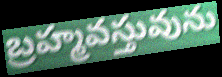
బ్రహ్మవస్తువును